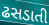
ઢસડાતી